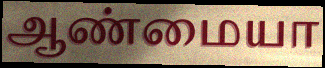
ஆண்மையா